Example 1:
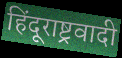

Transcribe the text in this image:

हिंदूराष्ट्रवादी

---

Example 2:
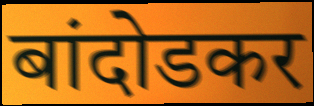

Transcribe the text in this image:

बांदोडकर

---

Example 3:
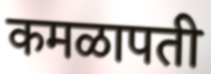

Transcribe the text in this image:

कमळापती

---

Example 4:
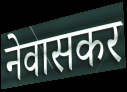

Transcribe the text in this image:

नेवासकर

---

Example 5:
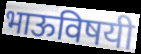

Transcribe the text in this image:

भाऊविषयी